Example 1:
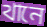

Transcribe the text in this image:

থানে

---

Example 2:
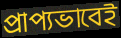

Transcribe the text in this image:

প্রাপ্যভাবেই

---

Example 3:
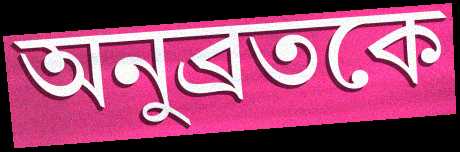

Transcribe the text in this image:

অনুব্রতকে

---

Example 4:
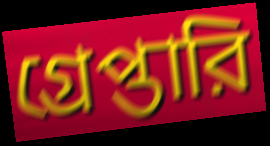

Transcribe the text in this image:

গ্রেপ্তারি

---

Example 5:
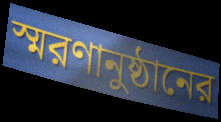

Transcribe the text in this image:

স্মরণানুষ্ঠানের